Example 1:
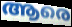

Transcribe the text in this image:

ആരെ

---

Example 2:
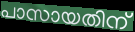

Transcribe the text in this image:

പാസായതിന്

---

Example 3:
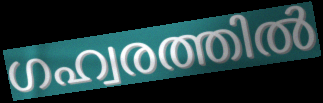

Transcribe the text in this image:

ഗഹ്വരത്തിൽ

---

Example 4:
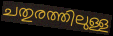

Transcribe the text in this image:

ചതുരത്തിലുള്ള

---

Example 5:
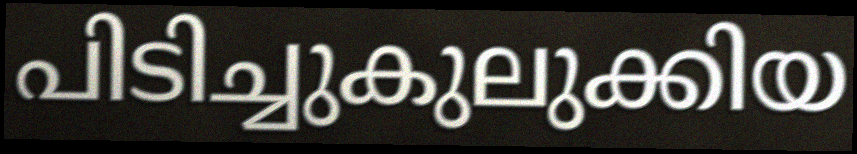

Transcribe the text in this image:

പിടിച്ചുകുലുക്കിയ